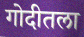
गोदीतला